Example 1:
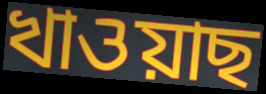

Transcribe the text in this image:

খাওয়াছ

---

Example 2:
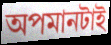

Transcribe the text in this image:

অপমানটাই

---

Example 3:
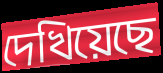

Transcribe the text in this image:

দেখিয়েছে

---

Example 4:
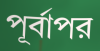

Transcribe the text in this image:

পূর্বাপর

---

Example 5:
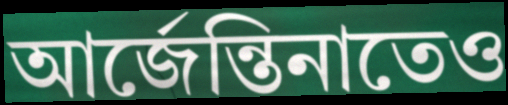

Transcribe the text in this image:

আর্জেন্তিনাতেও